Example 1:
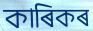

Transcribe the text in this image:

কাৰিকৰ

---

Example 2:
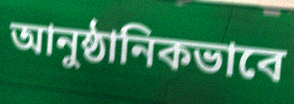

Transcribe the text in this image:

আনুষ্ঠানিকভাবে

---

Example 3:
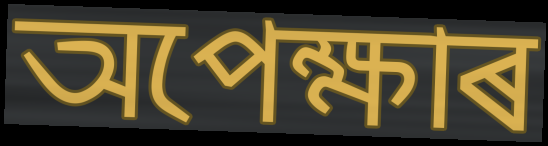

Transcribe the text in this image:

অপেক্ষাৰ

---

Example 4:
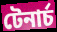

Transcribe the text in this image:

টেনাৰ্চ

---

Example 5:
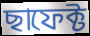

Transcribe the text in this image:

ছাফেক্ট